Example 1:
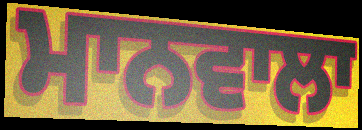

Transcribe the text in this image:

ਮਾਨਵਾਲਾ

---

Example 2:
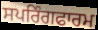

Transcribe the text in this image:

ਸਪਰਿੰਗਫਾਰਮ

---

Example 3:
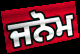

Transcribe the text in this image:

ਜਨੋਮ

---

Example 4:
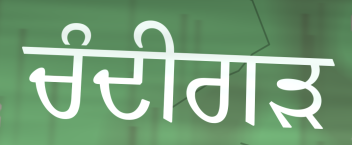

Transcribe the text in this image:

ਚੰਦੀਗੜ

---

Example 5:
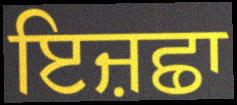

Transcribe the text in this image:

ਇਜ਼ਛਾ